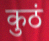
कुठं